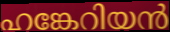
ഹങ്കേറിയൻ